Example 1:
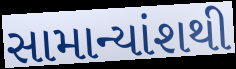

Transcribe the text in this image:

સામાન્યાંશથી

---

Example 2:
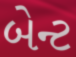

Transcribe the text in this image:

બેન્ટ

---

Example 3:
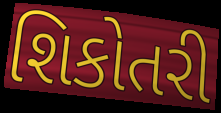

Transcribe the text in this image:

શિકોતરી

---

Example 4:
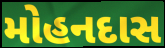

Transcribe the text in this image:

મોહનદાસ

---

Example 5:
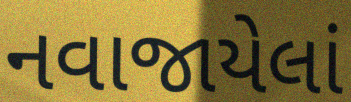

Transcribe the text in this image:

નવાજાયેલાં